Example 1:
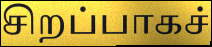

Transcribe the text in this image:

சிறப்பாகச்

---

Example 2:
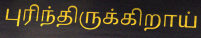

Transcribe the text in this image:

புரிந்திருக்கிறாய்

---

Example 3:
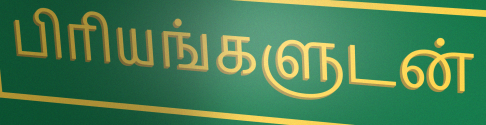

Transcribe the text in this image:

பிரியங்களுடன்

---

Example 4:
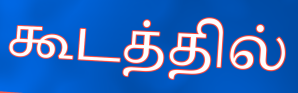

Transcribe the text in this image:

கூடத்தில்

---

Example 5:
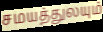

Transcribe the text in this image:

சமயத்துலயும்